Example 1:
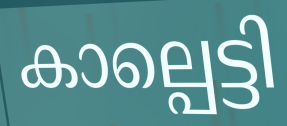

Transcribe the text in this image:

കാല്പെട്ടി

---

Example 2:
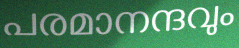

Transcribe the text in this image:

പരമാനന്ദവും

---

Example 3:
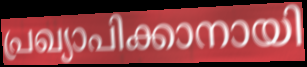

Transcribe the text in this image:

പ്രഖ്യാപിക്കാനായി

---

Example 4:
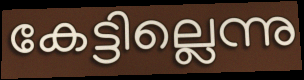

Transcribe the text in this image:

കേട്ടില്ലെന്നു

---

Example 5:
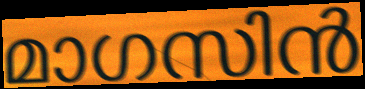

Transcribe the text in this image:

മാഗസിൻ